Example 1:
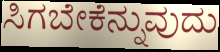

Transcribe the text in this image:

ಸಿಗಬೇಕೆನ್ನುವುದು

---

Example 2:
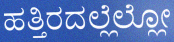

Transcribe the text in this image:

ಹತ್ತಿರದಲ್ಲೆಲ್ಲೋ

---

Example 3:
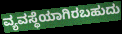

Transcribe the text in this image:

ವ್ಯವಸ್ಥೆಯಾಗಿರಬಹುದು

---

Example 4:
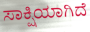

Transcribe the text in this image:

ಸಾಕ್ಷಿಯಾಗಿದೆ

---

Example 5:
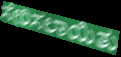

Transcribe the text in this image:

ಸೇರಿಸಲಾಯಿತು